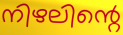
നിഴലിന്റെ